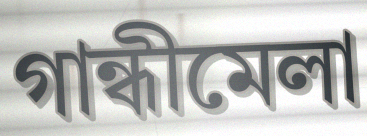
গান্ধীমেলা